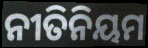
ନୀତିନିୟମ